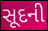
સૂદની